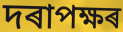
দৰাপক্ষৰ